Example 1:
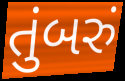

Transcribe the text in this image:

તુંબરું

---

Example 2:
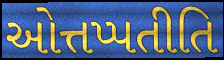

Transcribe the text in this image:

ઓત્તપ્પતીતિ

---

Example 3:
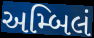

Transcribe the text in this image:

અમ્બિલં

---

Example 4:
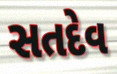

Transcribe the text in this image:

સતદેવ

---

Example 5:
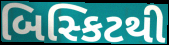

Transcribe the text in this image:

બિસ્કિટથી